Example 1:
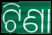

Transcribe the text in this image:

ଟିଣା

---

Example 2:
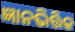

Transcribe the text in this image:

ଜ୍ଞାନଭିତ୍ତିକ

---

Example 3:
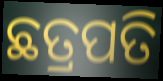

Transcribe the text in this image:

ଛତ୍ରପତି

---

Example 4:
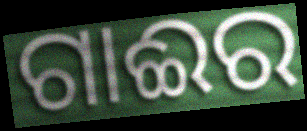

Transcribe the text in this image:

ଗାଈର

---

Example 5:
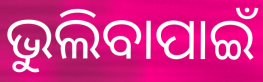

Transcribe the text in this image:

ଭୁଲିବାପାଇଁ